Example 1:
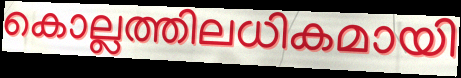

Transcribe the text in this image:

കൊല്ലത്തിലധികമായി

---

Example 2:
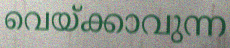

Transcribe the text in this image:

വെയ്ക്കാവുന്ന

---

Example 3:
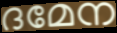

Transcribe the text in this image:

ദമേന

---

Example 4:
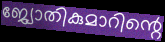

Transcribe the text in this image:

ജ്യോതികുമാറിന്റെ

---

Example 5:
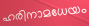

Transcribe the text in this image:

ഹരിനാമധേയം